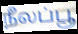
நீலப்பூ